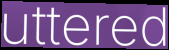
uttered